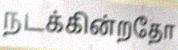
நடக்கின்றதோ